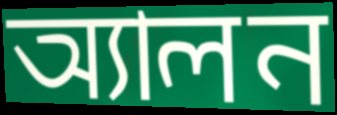
অ্যালন